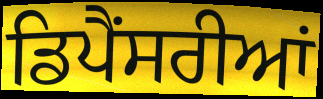
ਡਿਪੈਂਸਰੀਆਂ